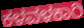
ಕಳವಳಕಾರಿ